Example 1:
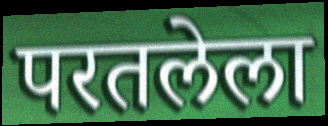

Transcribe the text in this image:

परतलेला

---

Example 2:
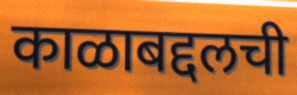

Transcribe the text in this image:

काळाबद्दलची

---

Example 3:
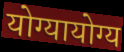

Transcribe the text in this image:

योग्यायोग्य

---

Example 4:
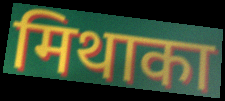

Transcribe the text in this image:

मिथाका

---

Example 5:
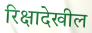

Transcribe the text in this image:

रिक्षादेखील